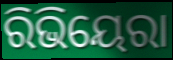
ରିଭିୟେରା